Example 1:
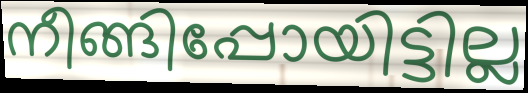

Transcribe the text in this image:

നീങ്ങിപ്പോയിട്ടില്ല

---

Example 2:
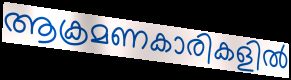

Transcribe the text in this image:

ആക്രമണകാരികളിൽ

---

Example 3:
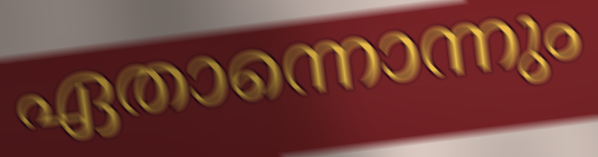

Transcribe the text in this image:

ഏതാന്നൊന്നും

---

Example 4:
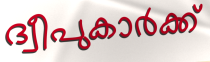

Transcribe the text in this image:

ദ്വീപുകാർക്ക്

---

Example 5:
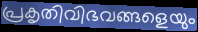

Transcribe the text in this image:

പ്രകൃതിവിഭവങ്ങളെയും